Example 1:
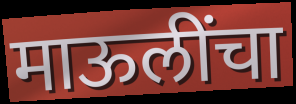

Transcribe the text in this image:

माऊलींचा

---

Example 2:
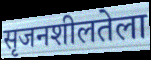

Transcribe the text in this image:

सृजनशीलतेला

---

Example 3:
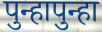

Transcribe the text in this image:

पुन्हापुन्हा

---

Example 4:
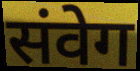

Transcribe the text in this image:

संवेग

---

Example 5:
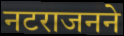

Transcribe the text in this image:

नटराजनने